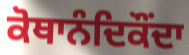
ਕੋਥਾਨੰਦਿਕੌਂਦਾ